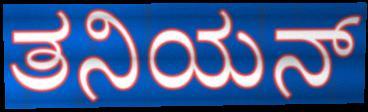
ತನಿಯನ್